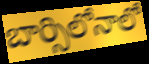
బార్సిలోనాలో